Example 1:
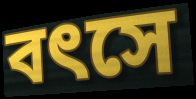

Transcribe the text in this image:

বৎসে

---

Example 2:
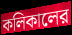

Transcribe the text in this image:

কলিকালের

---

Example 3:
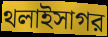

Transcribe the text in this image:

থলাইসাগর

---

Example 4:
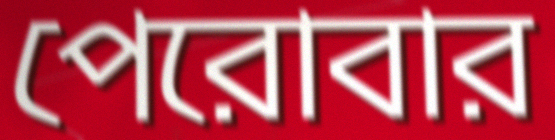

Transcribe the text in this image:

পেরোবার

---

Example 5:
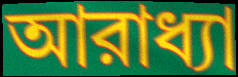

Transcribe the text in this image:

আরাধ্যা